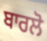
ਬਾਰਲੋ